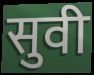
सुवी